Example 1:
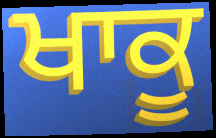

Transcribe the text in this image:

ਖਾਕੂ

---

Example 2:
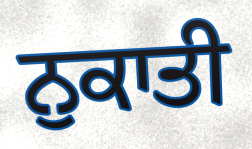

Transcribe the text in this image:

ਨੁਕਾਤੀ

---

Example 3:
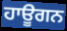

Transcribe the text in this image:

ਹਾਊਗਨ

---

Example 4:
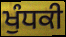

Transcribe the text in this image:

ਖੁੰਧਕੀ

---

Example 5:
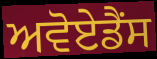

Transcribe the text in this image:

ਅਵੋਏਡੈਂਸ